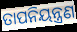
ତାପନିୟନ୍ତ୍ରଣ